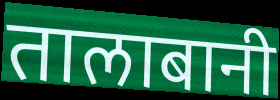
तालाबानी